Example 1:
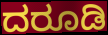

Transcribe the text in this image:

ದರೂಡಿ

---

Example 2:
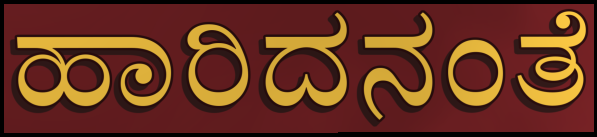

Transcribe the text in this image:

ಹಾರಿದನಂತೆ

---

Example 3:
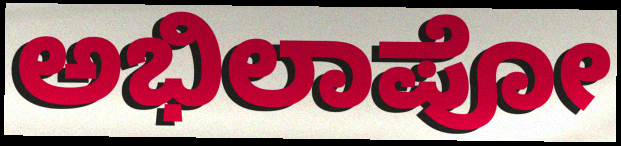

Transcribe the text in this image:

ಅಭಿಲಾಪೋ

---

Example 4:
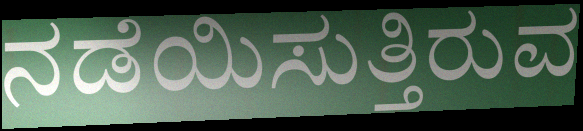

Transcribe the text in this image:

ನಡೆಯಿಸುತ್ತಿರುವ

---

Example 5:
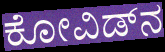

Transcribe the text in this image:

ಕೋವಿಡ್‌ನ